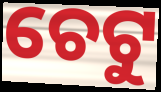
ଚେଟୁ